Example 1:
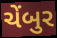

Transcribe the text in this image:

ચેંબુર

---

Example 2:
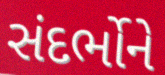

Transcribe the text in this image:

સંદર્ભોને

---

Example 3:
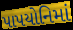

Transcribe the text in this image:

પાપયોનિમાં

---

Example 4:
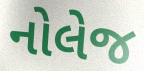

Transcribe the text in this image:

નોલેજ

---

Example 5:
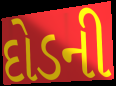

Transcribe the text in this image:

દોડની